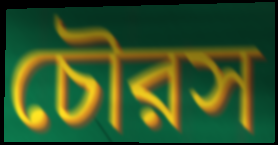
চৌরস